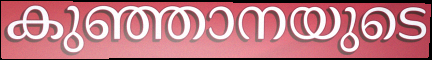
കുഞ്ഞാനയുടെ